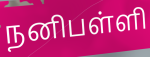
நனிபள்ளி